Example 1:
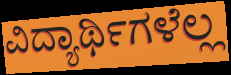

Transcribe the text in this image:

ವಿದ್ಯಾರ್ಥಿಗಳೆಲ್ಲ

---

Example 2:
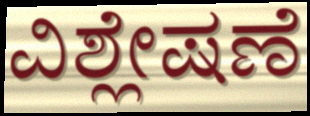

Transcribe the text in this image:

ವಿಶ್ಲೇಷಣೆ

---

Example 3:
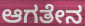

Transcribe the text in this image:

ಆಗತೇನ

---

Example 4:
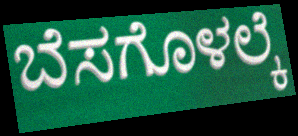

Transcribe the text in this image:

ಬೆಸಗೊಳಲ್ಕೆ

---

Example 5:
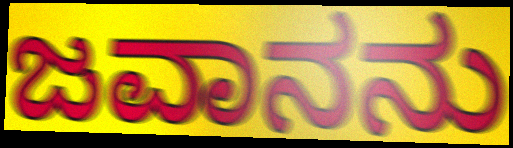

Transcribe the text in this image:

ಜವಾನನು